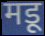
मडू